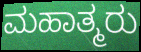
ಮಹಾತ್ಮರು